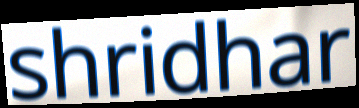
shridhar